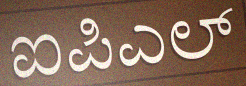
ಐಪಿಎಲ್